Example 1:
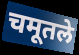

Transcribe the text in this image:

चमूतले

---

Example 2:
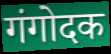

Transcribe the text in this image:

गंगोदक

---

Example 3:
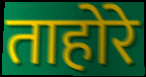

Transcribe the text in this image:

ताहोरे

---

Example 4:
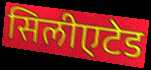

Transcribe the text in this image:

सिलीएटेड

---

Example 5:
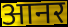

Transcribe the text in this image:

आनर